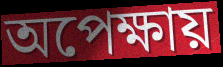
অপেক্ষায়